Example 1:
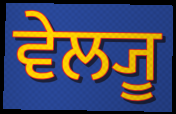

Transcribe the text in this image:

ਵੇਲ੍ਯੂ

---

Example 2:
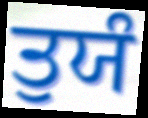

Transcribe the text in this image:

ਤੁਯੰ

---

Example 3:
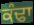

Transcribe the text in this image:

ਕੰਢਾ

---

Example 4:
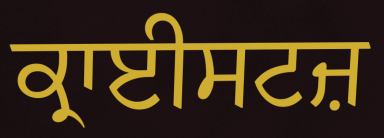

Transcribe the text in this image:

ਕ੍ਰਾਈਸਟਜ਼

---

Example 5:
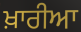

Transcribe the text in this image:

ਖ਼ਾਰੀਆ